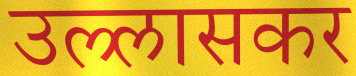
उल्लासकर